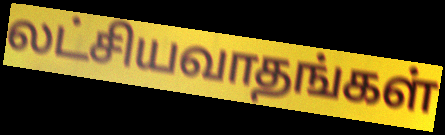
லட்சியவாதங்கள்